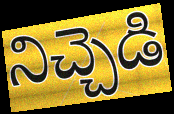
నిచ్చెడి